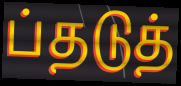
ப்தடுத்